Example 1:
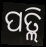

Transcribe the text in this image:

ପତ୍ଲି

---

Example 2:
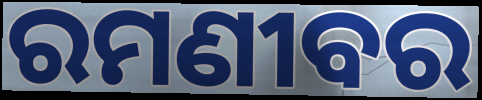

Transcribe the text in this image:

ରମଣୀବର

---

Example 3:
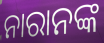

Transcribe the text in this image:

ନାରାନଙ୍କ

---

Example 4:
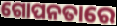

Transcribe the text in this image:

ଗୋପନତାରେ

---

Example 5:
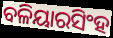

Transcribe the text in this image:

ବଳିୟାରସିଂହ